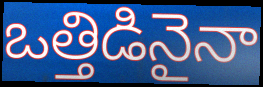
ఒత్తిడినైనా